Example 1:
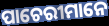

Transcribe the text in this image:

ପାଚେରୀମାନେ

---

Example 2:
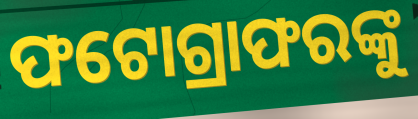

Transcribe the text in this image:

ଫଟୋଗ୍ରାଫରଙ୍କୁ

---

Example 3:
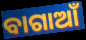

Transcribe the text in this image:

ବାଗାଆଁ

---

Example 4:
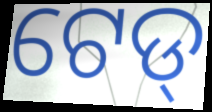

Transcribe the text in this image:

ଟେଡ୍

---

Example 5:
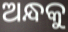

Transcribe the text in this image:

ଅନ୍ଧକୁ